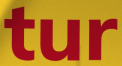
tur